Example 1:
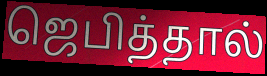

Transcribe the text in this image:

ஜெபித்தால்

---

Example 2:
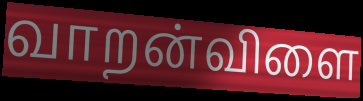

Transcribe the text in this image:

வாறன்விளை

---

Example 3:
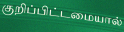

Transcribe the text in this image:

குறிப்பிட்டமையால்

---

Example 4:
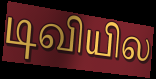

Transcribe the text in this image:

டிவியில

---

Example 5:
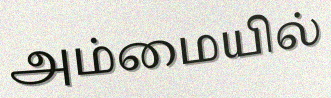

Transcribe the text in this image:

அம்மையில்